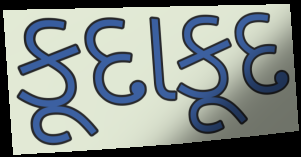
કૂદાકૂદ